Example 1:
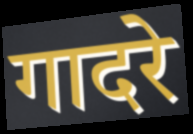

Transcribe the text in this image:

गादरे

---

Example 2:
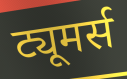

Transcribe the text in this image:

ट्यूमर्स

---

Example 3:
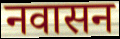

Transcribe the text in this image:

नवासन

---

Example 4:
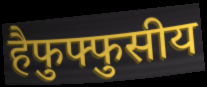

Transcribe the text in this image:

हैफुफ्फुसीय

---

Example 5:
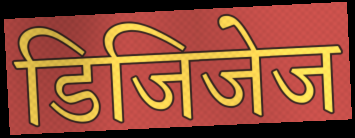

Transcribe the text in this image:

डिजिजेज